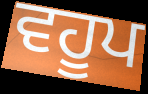
ਵਹੂਪ